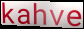
kahve